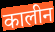
कालीन